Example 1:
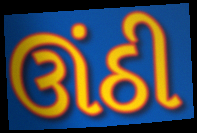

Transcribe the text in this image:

ઊંઠી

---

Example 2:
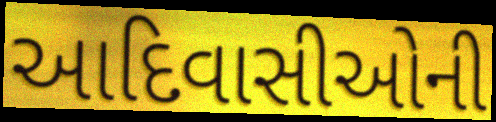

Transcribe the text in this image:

આદિવાસીઓની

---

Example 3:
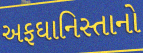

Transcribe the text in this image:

અફઘાનિસ્તાનો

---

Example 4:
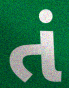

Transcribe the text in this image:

તં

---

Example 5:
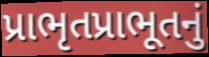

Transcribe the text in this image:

પ્રાભૃતપ્રાભૂતનું